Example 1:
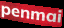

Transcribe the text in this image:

penmai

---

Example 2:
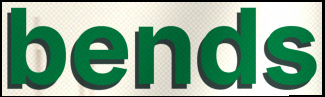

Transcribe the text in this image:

bends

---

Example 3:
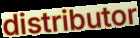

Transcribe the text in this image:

distributor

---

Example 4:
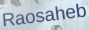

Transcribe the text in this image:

Raosaheb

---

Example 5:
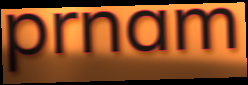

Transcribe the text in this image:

prnam